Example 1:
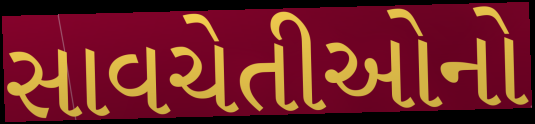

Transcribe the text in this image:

સાવચેતીઓનો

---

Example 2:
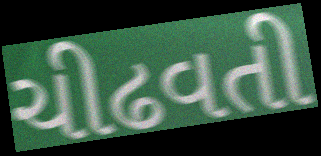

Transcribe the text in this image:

ચીઢવતી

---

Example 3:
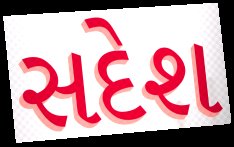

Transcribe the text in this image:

સદેશ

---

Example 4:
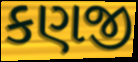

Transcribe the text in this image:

કણજી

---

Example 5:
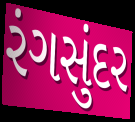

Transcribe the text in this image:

રંગસુંદર